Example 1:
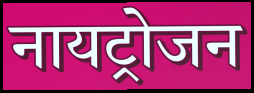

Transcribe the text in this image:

नायट्रोजन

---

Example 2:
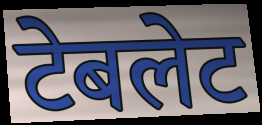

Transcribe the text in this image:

टेबलेट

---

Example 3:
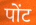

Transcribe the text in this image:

पोंट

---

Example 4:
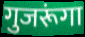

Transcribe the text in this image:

गुजरूंगा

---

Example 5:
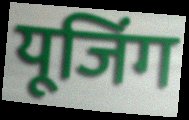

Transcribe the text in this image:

यूजिंग